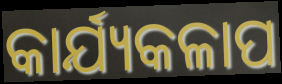
କାର୍ଯ୍ୟକଳାପ